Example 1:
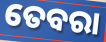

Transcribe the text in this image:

ତେବରା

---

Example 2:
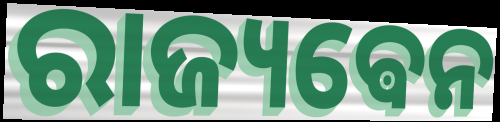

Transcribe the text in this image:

ରାଜ୍ୟଵେନ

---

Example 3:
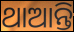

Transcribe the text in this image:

ଥାଆନ୍ତି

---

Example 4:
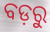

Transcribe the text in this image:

ବଡ଼ରୁ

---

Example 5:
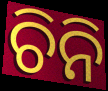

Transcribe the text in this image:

ଚିନି